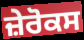
ਜ਼ੇਰੋਕਸ